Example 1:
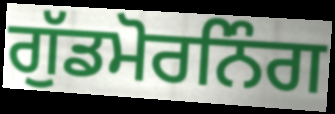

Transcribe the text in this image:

ਗੁੱਡਮੋਰਨਿੰਗ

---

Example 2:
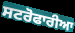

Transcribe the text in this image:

ਸਟਰੋਫਾਰੀਆ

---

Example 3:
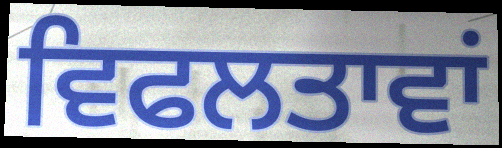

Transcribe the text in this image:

ਵਿਫਲਤਾਵਾਂ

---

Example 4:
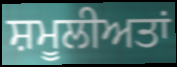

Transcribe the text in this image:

ਸ਼ਮੂਲੀਅਤਾਂ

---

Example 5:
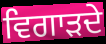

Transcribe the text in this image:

ਵਿਗਾੜਦੇ